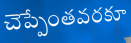
చెప్పేంతవరకూ